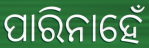
ପାରିନାହେଁ